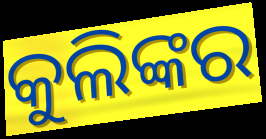
କୁଲିଙ୍କର